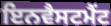
ਇਨਵੈਸਟਮੈਂਟ